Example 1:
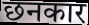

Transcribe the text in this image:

छनकार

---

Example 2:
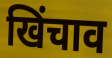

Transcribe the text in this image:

खिंचाव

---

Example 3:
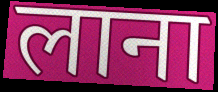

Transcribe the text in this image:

लाना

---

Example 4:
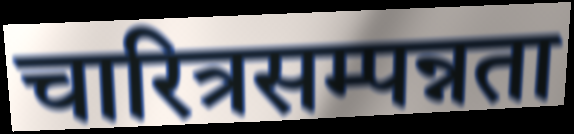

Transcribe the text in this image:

चारित्रसम्पन्नता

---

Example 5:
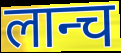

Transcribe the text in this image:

लान्‍च